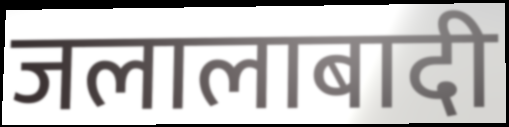
जलालाबादी